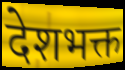
देशभक्त